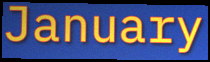
January